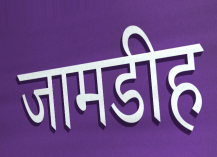
जामडीह